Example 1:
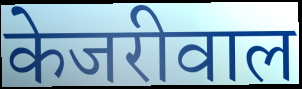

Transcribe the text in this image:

केजरीवाल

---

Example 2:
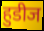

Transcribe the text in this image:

हुडीज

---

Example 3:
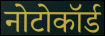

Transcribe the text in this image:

नोटोकॉर्ड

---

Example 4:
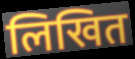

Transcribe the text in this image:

लिखित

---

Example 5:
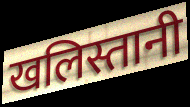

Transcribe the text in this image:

खलिस्तानी